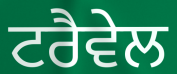
ਟਰੈਵੇਲ